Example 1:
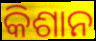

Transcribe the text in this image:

କିଶାନ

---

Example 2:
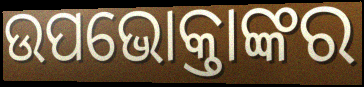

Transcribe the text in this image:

ଉପଭୋକ୍ତାଙ୍କର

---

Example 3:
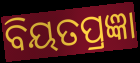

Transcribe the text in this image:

ବିୟତପ୍ରଜ୍ଞା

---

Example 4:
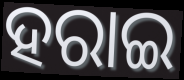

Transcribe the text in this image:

ହରାଇ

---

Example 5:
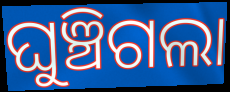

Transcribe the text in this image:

ଘୁଞ୍ଚିଗଲା